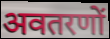
अवतरणों